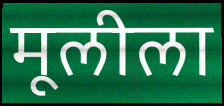
मूलीला